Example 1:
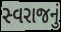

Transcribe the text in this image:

સ્વરાજનું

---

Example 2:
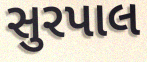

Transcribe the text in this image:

સુરપાલ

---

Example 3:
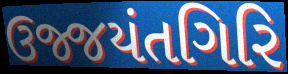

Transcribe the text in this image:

ઉજ્જયંતગિરિ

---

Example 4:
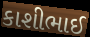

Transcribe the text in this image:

કાશીભાઈ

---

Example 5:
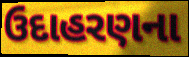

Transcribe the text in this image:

ઉદાહરણના